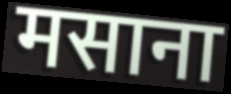
मसाना